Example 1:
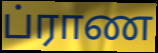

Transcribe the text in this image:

ப்ராண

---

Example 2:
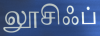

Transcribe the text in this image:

லூசிஃப்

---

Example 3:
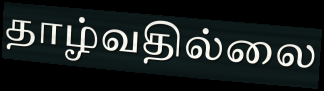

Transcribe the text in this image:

தாழ்வதில்லை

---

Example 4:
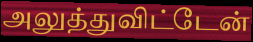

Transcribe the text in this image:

அலுத்துவிட்டேன்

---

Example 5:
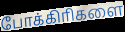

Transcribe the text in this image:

போக்கிரிகளை